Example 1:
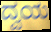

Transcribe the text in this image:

ದ್ವಯ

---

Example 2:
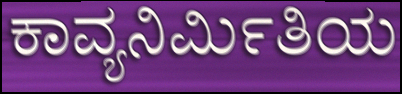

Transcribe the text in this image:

ಕಾವ್ಯನಿರ್ಮಿತಿಯ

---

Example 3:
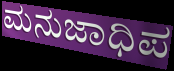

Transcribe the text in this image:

ಮನುಜಾಧಿಪ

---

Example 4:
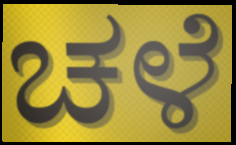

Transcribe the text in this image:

ಚಳೆ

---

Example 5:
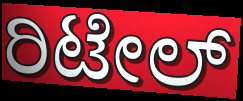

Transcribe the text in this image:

ರಿಟೇಲ್